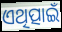
ଏଥିତ୍ପାଇଁ